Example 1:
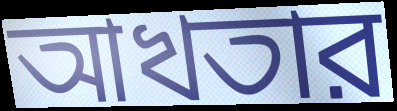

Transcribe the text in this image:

আখতার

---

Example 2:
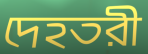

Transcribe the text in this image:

দেহতরী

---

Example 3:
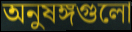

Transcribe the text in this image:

অনুষঙ্গগুলো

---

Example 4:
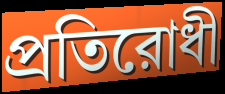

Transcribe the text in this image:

প্রতিরোধী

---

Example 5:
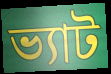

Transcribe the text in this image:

ভ্যাট